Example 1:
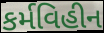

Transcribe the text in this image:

કર્મવિહીન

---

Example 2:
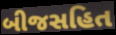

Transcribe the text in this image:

બીજસહિત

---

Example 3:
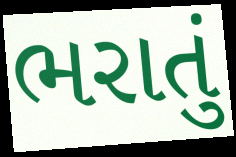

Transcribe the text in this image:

ભરાતું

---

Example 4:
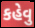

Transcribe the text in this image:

કહેવુ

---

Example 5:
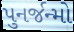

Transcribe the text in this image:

પુનર્જન્મો